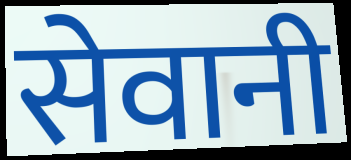
सेवानी